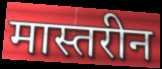
मास्तरीन